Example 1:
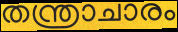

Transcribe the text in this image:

തന്ത്രാചാരം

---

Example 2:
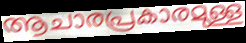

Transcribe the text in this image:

ആചാരപ്രകാരമുള്ള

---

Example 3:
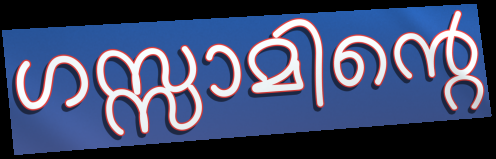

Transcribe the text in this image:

ഗസ്സാമിന്റെ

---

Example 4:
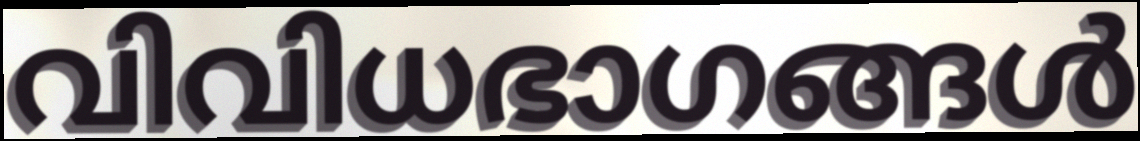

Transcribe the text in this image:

വിവിധഭാഗങ്ങൾ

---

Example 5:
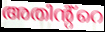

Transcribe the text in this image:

അതിന്റ്റെ